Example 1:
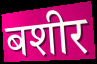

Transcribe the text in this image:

बशीर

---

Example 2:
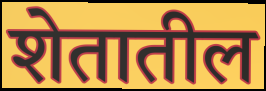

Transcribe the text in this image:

शेतातील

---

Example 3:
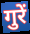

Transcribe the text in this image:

गुरें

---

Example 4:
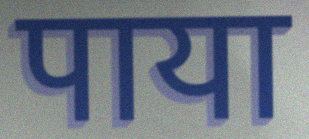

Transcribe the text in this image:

पाया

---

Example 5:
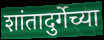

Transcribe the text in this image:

शांतादुर्गेच्या